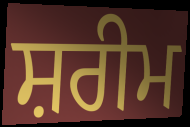
ਸ਼ਰੀਮ